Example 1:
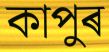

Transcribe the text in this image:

কাপুৰ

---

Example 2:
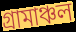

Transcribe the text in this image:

গ্ৰামাঞ্চল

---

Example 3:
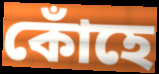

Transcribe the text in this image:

কোঁহে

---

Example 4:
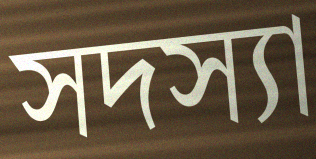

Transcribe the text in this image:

সদস্যা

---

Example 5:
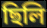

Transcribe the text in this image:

ছিলি